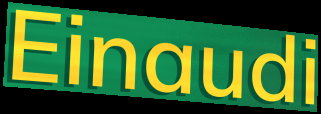
Einaudi